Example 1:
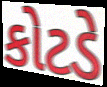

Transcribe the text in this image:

કોટડે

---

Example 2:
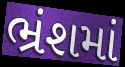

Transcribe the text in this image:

ભ્રંશમાં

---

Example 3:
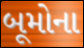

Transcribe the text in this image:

બૂમોના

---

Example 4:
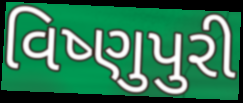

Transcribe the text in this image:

વિષ્ણુપુરી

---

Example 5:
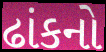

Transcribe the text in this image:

ઢાંકનો